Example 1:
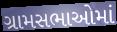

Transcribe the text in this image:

ગ્રામસભાઓમાં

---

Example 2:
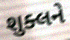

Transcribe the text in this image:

શુક્લને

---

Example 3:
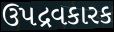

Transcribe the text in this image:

ઉપદ્રવકારક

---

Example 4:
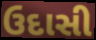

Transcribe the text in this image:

ઉદાસી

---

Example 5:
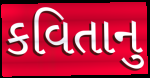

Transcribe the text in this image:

કવિતાનુ